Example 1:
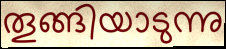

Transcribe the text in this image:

തൂങ്ങിയാടുന്നു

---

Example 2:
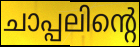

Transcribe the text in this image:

ചാപ്പലിന്റെ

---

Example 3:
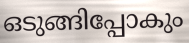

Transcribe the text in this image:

ഒടുങ്ങിപ്പോകും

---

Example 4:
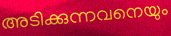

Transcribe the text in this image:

അടിക്കുന്നവനെയും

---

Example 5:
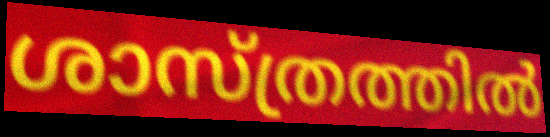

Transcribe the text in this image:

ശാസ്ത്രത്തിൽ